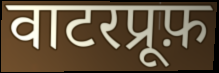
वाटरप्रूफ़